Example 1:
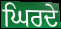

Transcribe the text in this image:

ਘਿਰਦੇ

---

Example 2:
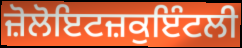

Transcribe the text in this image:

ਜ਼ੋਲੋਇਟਜ਼ਕੁਇੰਟਲੀ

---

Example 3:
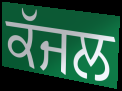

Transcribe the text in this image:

ਕੱਜਲ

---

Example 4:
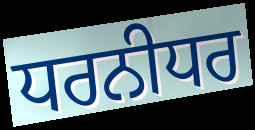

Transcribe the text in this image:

ਧਰਨੀਧਰ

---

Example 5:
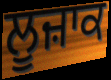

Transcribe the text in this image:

ਲੂਜ਼ਾਕ